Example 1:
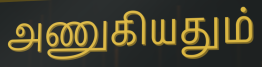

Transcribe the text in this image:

அணுகியதும்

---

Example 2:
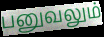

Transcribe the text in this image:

பனுவலும்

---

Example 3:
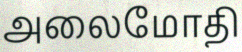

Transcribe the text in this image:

அலைமோதி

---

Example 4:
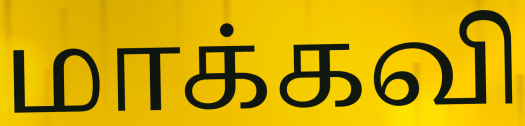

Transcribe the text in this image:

மாக்கவி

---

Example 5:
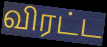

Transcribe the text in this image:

விரட்ட